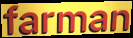
farman